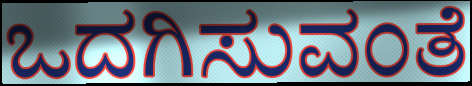
ಒದಗಿಸುವಂತೆ